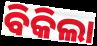
ବିକିଲା